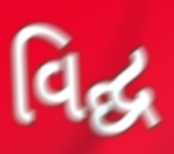
વિદ્ઘ